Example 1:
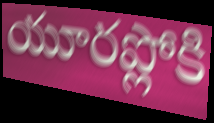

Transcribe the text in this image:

యూరప్లోకి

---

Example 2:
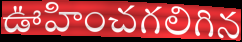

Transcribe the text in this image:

ఊహించగలిగిన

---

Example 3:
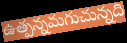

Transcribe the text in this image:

ఉత్పన్నమగుచున్నది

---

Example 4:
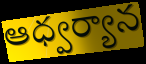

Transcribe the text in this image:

ఆధ్వర్యాన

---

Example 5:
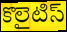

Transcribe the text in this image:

కొలైటిస్